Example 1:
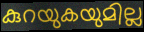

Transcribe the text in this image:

കുറയുകയുമില്ല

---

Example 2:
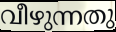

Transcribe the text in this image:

വീഴുന്നതു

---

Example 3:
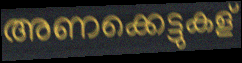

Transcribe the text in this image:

അണക്കെട്ടുകള്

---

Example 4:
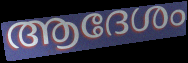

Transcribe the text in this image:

ആദേശം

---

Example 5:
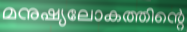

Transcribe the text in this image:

മനുഷ്യലോകത്തിന്റെ